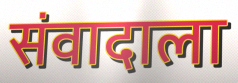
संवादाला